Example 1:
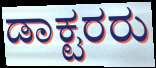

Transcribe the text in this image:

ಡಾಕ್ಟರರು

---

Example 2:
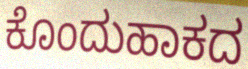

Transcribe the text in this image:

ಕೊಂದುಹಾಕದ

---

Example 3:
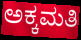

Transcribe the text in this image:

ಅಕ್ಕಮತಿ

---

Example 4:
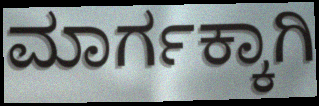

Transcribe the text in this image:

ಮಾರ್ಗಕ್ಕಾಗಿ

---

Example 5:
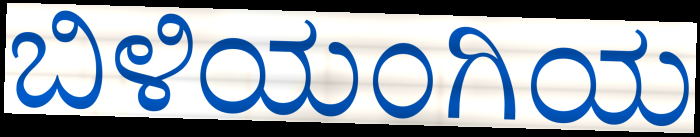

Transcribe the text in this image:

ಬಿಳಿಯಂಗಿಯ